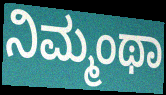
ನಿಮ್ಮಂಥಾ